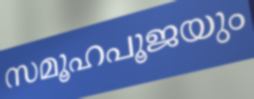
സമൂഹപൂജയും